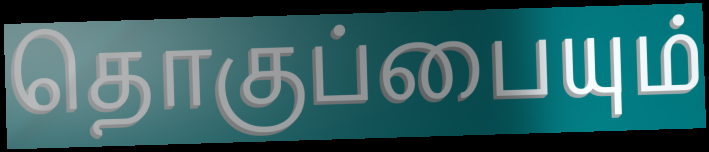
தொகுப்பையும்